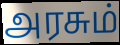
அரசும்